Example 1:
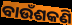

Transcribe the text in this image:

ବାଉଁଶକଣି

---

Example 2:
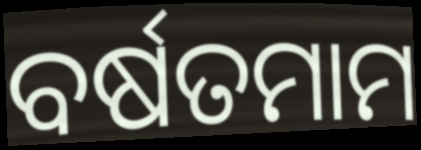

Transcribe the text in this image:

ବର୍ଷତମାମ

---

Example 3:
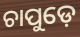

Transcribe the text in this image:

ଚାପୁଡ଼େ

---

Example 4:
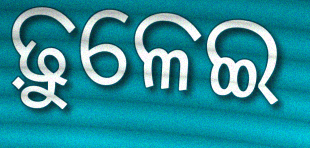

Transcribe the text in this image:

ଢ଼ୁଳେଇ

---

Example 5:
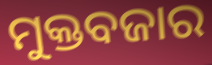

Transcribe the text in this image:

ମୁକ୍ତବଜାର